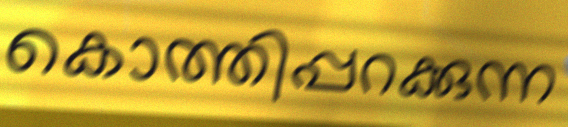
കൊത്തിപ്പറക്കുന്ന